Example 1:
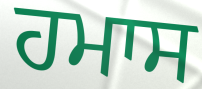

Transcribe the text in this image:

ਹਮਾਸ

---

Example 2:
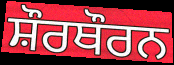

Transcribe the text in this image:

ਸ਼ੌਰਥੌਰਨ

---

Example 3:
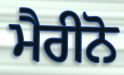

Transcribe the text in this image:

ਮੈਰੀਨੋ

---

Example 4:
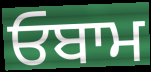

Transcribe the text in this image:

ਓਬਾਮ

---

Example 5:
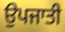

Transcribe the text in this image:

ਉਪਜਾਤੀ